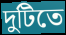
দুটিতে